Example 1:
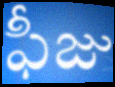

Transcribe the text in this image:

ఫీజు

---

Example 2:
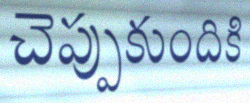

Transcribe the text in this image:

చెప్పుకుందికి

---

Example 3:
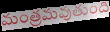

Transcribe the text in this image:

మంత్రమవుతుంది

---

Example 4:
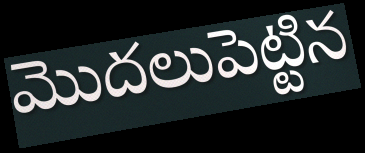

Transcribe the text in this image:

మొదలుపెట్టిన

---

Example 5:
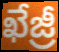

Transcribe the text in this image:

ఖేజ్రీ